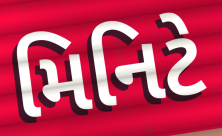
મિનિટે